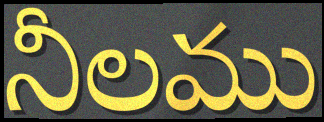
నీలము